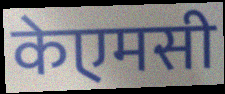
केएमसी